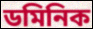
ডমিনিক